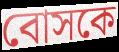
বোসকে